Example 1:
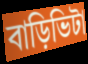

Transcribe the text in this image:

বাড়িভিটা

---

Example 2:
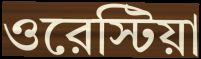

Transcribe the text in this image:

ওরেস্টিয়া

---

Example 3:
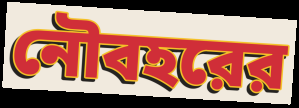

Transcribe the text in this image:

নৌবহরের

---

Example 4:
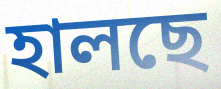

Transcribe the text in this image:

হালছে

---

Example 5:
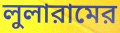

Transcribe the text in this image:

লুলারামের